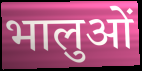
भालुओं